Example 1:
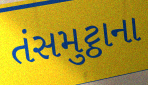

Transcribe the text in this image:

તંસમુટ્ઠાના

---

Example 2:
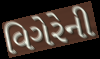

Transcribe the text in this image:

વિગેરેની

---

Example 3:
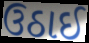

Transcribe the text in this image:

ઉઠાઈ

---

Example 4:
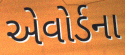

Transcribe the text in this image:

એવોર્ડના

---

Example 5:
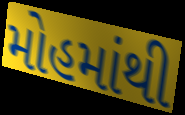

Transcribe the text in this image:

મોહમાંથી